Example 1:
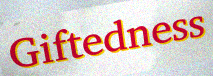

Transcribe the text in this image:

Giftedness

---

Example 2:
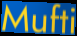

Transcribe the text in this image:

Mufti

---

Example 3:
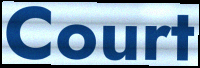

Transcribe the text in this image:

Court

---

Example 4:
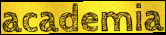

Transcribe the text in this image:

academia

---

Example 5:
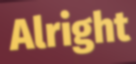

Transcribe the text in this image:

Alright